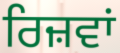
ਰਿਜ਼ਵਾਂ